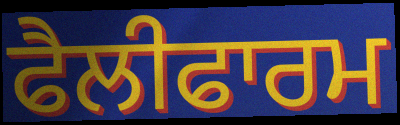
ਫੈਲੀਫਾਰਮ